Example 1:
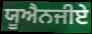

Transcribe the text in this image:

ਯੂਐਨਜੀਏ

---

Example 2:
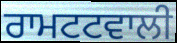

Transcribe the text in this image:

ਰਾਮਟਟਵਾਲੀ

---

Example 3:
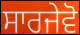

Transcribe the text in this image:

ਸਾਰਜੇਵੋ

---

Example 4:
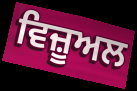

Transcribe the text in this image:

ਵਿਜ਼ੂਅਲ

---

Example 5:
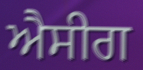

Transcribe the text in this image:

ਐਸੀਗ